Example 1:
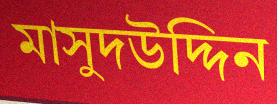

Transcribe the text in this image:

মাসুদউদ্দিন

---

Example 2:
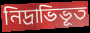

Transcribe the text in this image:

নিদ্রাভিভূত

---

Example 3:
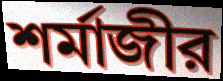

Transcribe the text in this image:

শর্মাজীর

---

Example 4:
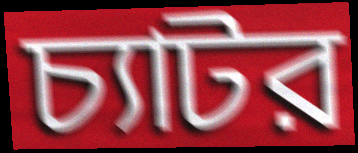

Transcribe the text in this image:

চ্যাটর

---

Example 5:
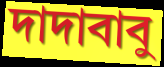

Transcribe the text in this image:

দাদাবাবু